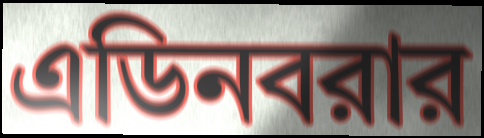
এডিনবরার